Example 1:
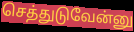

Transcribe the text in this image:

செத்துடுவேன்னு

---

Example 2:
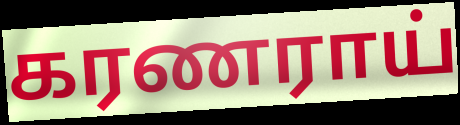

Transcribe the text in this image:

கரணராய்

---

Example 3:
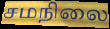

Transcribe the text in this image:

சமநிலை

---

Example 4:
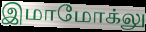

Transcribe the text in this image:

இமாமோக்லு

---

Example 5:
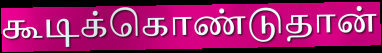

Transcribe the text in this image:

கூடிக்கொண்டுதான்